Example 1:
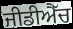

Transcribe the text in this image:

ਜੀਡੀਐੱਚ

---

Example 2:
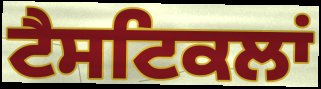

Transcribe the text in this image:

ਟੈਸਟਿਕਲਾਂ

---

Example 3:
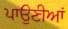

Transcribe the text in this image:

ਪਾਉਣੀਆਂ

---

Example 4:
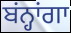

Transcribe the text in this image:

ਬਂਨ੍ਹਾਂਗਾ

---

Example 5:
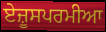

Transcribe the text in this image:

ਏਜ਼ੂਸਪਰਮੀਆ